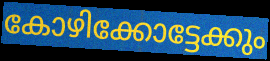
കോഴിക്കോട്ടേക്കും